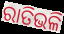
ରାତିଭଳି